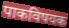
पाकविषयक